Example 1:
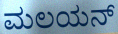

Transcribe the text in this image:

ಮಲಯನ್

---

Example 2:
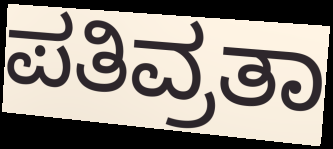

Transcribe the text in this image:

ಪತಿವ್ರತಾ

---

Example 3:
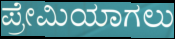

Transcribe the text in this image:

ಪ್ರೇಮಿಯಾಗಲು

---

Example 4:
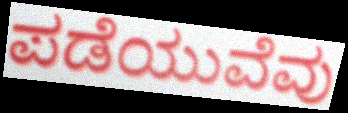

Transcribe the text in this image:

ಪಡೆಯುವೆವು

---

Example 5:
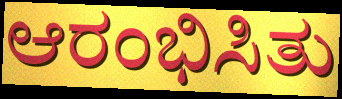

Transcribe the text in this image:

ಆರಂಭಿಸಿತು